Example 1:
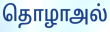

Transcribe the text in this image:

தொழாஅல்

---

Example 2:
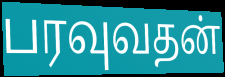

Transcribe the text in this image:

பரவுவதன்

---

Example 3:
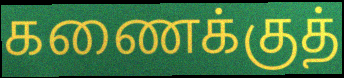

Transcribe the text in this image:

கணைக்குத்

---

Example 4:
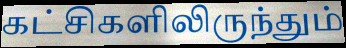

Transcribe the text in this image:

கட்சிகளிலிருந்தும்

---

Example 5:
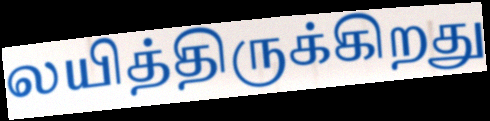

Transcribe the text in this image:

லயித்திருக்கிறது